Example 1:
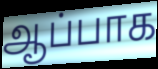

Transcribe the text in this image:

ஆப்பாக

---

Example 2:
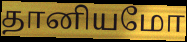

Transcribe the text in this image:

தானியமோ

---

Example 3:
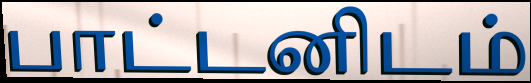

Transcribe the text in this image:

பாட்டனிடம்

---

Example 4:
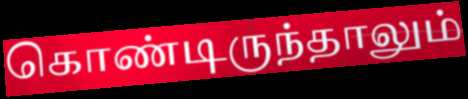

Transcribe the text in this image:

கொண்டிருந்தாலும்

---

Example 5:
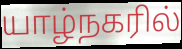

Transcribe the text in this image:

யாழ்நகரில்